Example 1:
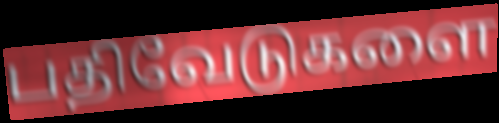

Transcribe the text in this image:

பதிவேடுகளை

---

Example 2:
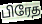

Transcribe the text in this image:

பிரேத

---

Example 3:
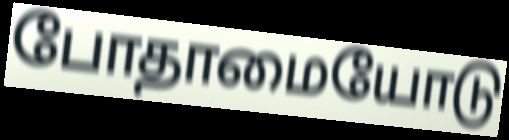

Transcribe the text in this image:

போதாமையோடு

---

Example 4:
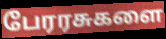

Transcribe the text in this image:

பேரரசுகளை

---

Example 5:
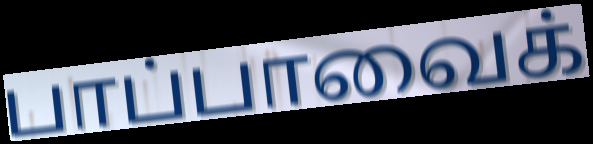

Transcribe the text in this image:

பாப்பாவைக்